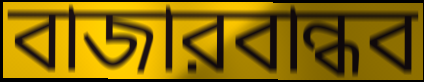
বাজারবান্ধব